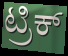
ಟ್ರಿಕ್